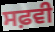
ਸਫ਼ਵੀ